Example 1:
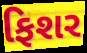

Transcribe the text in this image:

ફિશર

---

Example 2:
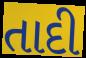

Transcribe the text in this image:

તાદી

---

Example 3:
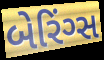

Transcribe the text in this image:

બેરિંગ્સ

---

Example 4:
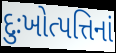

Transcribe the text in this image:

દુઃખોત્પત્તિનાં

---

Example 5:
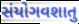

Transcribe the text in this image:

સંયોગવશાતુ